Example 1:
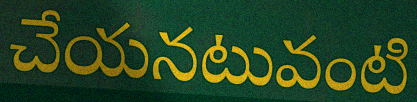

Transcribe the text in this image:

చేయనటువంటి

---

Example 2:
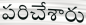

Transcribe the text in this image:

పరిచేశారు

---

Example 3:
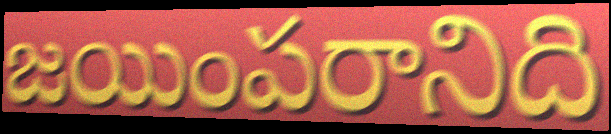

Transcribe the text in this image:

జయింపరానిది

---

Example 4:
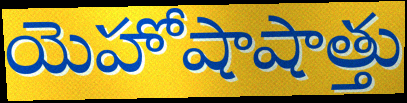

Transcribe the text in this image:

యెహోషాషాత్తు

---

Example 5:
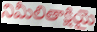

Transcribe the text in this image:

నిమీలితాక్షియై